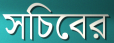
সচিবের